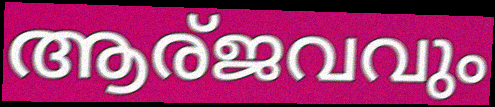
ആര്ജവവും